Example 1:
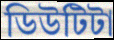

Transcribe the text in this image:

ডিউটিটা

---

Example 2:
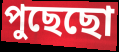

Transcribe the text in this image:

পুছেছো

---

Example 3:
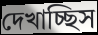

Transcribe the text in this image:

দেখাচ্ছিস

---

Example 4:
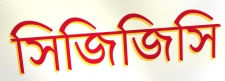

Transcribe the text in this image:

সিজিজিসি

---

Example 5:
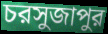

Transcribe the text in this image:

চরসুজাপুর